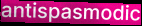
antispasmodic